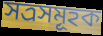
সত্ৰসমূহক